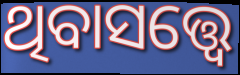
ଥିବାସତ୍ତ୍ଵେ